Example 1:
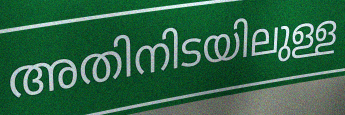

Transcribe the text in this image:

അതിനിടയിലുള്ള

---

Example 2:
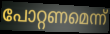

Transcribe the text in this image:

പോറ്റണമെന്ന്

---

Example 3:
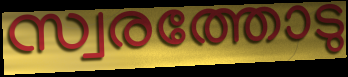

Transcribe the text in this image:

സ്വരത്തോടു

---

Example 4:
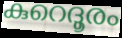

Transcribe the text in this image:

കുറെദൂരം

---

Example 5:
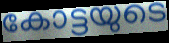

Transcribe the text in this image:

കോട്ടയുടെ